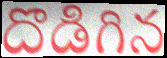
దొడిగిన